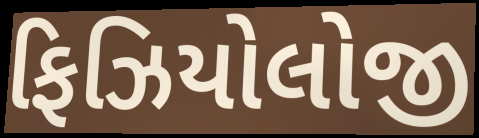
ફિઝિયોલોજી